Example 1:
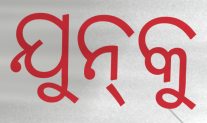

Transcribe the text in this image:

ଯୁନ୍‍କୁ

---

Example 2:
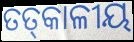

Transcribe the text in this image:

ତତ୍‌କାଳୀୟ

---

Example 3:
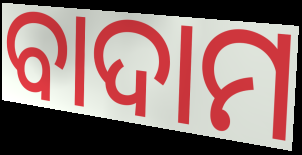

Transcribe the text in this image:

ବାଦାମ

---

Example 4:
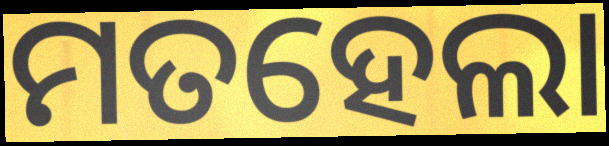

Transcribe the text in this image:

ମତହେଲା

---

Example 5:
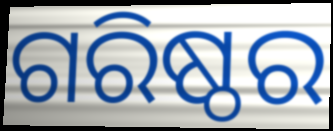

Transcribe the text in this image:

ଗରିଷ୍ଠର